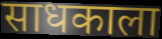
साधकाला